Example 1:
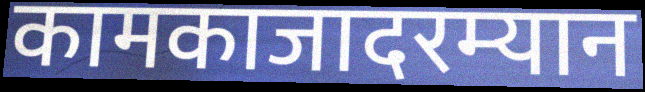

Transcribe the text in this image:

कामकाजादरम्यान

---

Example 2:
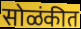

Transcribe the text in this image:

सोळंकीत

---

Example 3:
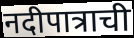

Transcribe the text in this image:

नदीपात्राची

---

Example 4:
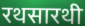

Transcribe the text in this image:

रथसारथी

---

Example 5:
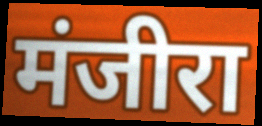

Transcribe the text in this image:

मंजीरा